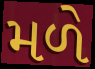
મળે